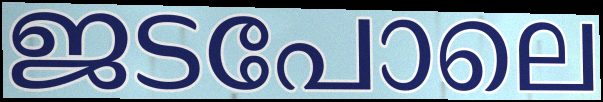
ജടപോലെ